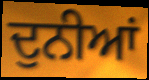
ਦੁਨੀਆਂ